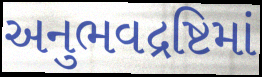
અનુભવદ્રષ્ટિમાં